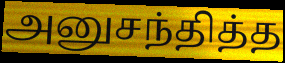
அனுசந்தித்த